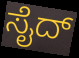
ಸೈದ್